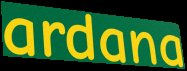
ardana